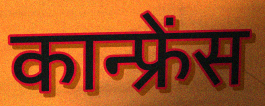
कान्फ्रेंस